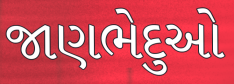
જાણભેદુઓ